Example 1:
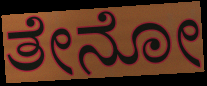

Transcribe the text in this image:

ತೇನೋ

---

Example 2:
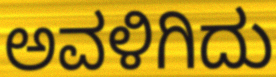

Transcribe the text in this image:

ಅವಳಿಗಿದು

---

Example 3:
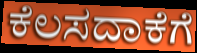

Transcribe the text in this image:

ಕೆಲಸದಾಕೆಗೆ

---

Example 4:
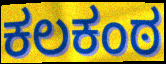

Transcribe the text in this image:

ಕಲಕಂಠ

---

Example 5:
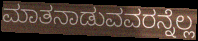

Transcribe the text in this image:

ಮಾತನಾಡುವವರನ್ನೆಲ್ಲ